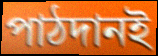
পাঠদানই